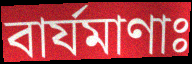
বার্যমাণাঃ